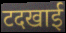
टदखाई